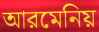
আরমেনিয়